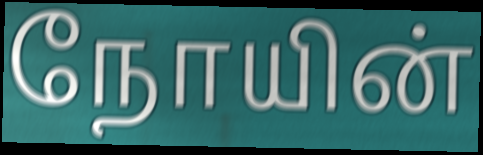
நோயின்